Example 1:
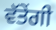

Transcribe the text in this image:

ਵੱਤੇਂਗੀ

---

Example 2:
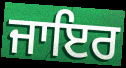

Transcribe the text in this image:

ਜਾਇਰ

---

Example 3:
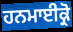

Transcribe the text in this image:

ਹਨਮਾਈਕ੍ਰੋ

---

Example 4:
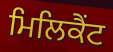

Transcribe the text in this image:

ਮਿਲਿਕੈਂਟ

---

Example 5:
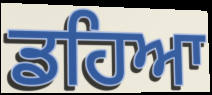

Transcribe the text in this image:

ਡਹਿਆ